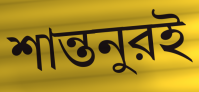
শান্তনুরই